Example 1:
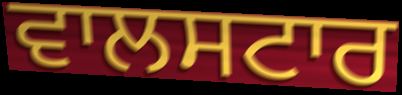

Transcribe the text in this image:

ਵਾਲਸਟਾਰ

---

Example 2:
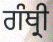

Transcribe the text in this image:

ਗੰਥ੍ਰੀ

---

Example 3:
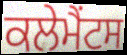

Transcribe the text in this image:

ਕਲੇਮੈਂਟਸ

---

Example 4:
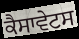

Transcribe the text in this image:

ਕੈਸਾਵੇਟਸ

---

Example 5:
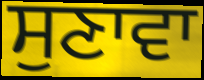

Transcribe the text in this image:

ਸੁਣਾਵਾ